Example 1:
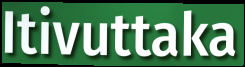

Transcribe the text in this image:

Itivuttaka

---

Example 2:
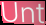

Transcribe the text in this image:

Unt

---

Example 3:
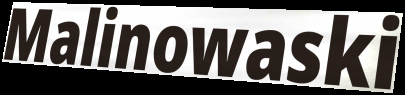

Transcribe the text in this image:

Malinowaski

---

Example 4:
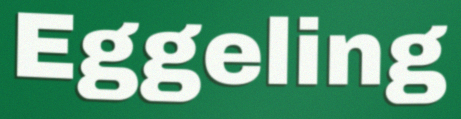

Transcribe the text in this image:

Eggeling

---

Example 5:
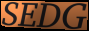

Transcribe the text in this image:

SEDG